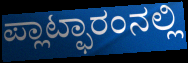
ಪ್ಲಾಟ್ಫಾರಂನಲ್ಲಿ